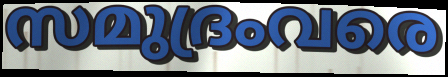
സമുദ്രംവരെ